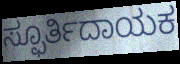
ಸ್ಫೂರ್ತಿದಾಯಕ